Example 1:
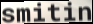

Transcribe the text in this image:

smitin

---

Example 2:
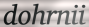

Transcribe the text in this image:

dohrnii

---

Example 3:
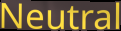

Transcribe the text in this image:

Neutral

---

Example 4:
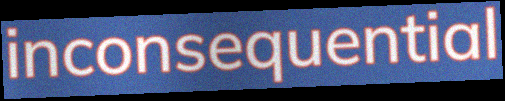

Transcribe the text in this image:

inconsequential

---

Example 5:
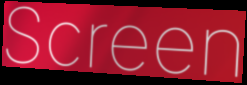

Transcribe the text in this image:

Screen